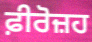
ਫ਼ੀਰੋਜ਼ਹ